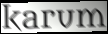
karum